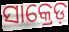
ସାକ୍ରେଡ଼